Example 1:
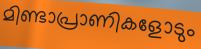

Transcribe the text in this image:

മിണ്ടാപ്രാണികളോടും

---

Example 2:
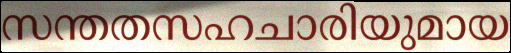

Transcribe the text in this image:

സന്തതസഹചാരിയുമായ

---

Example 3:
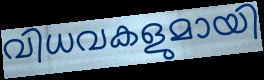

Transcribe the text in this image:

വിധവകളുമായി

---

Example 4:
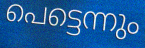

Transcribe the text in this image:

പെട്ടെന്നും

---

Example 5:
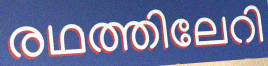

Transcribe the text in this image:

രഥത്തിലേറി